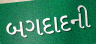
બગદાદની